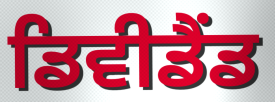
ਡਿਵੀਡੈਂਡ